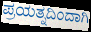
ಪ್ರಯತ್ನದಿಂದಾಗಿ